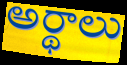
అర్థాలు